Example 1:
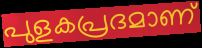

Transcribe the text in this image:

പുളകപ്രദമാണ്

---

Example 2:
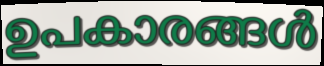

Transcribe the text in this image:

ഉപകാരങ്ങൾ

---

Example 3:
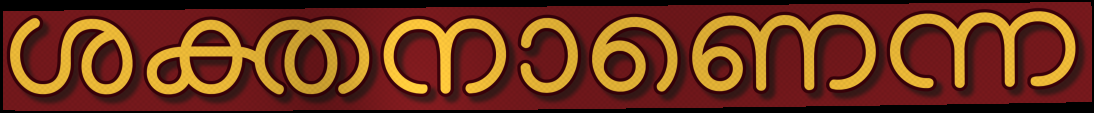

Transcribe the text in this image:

ശക്തനാണെന്ന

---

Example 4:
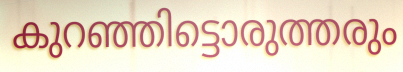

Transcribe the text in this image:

കുറഞ്ഞിട്ടൊരുത്തരും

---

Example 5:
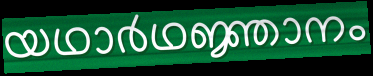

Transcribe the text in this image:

യഥാർഥജ്ഞാനം